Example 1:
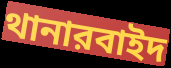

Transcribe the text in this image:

থানারবাইদ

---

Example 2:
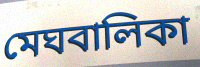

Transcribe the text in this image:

মেঘবালিকা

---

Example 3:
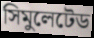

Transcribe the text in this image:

সিমুলেটেড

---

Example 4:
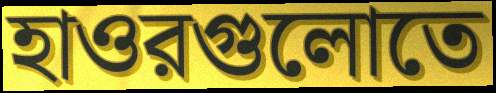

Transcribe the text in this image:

হাওরগুলোতে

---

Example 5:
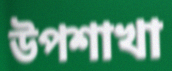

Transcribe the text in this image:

উপশাখা